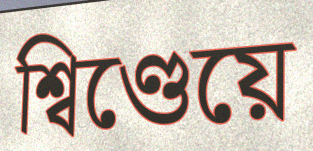
শ্বিণ্ডেয়ে